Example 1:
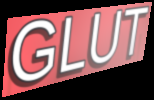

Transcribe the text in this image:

GLUT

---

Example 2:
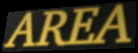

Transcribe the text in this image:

AREA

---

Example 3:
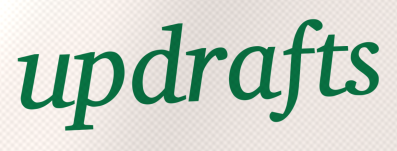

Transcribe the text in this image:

updrafts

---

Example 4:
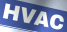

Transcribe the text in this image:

HVAC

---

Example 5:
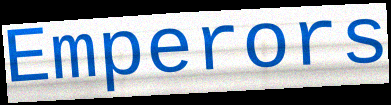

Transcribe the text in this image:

Emperors